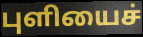
புளியைச்